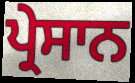
ਪ੍ਰੇਸਾਨ